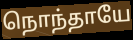
நொந்தாயே